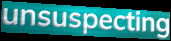
unsuspecting